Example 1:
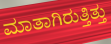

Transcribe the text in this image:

ಮಾತಾಗಿರುತ್ತಿತ್ತು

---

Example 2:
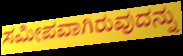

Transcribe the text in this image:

ಸಮೀಪವಾಗಿರುವುದನ್ನು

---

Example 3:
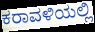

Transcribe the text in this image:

ಕರಾವಳಿಯಲ್ಲಿ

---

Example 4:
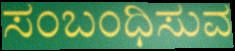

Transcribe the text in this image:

ಸಂಬಂಧಿಸುವ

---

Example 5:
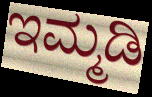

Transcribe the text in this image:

ಇಮ್ಮಡಿ